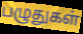
பழுதுகள்